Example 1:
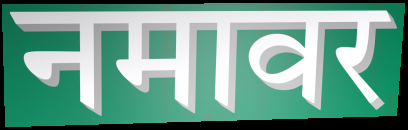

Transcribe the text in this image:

नमावर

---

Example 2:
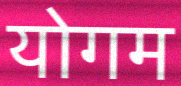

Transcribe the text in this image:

योगम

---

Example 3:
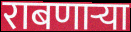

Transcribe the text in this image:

राबणार्‍या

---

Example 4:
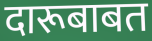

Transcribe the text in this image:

दारूबाबत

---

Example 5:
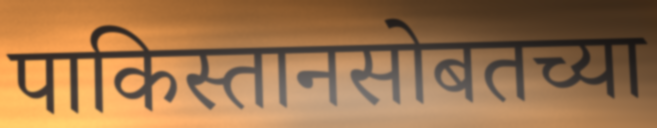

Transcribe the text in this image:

पाकिस्तानसोबतच्या